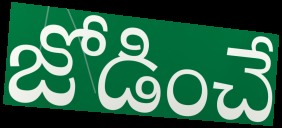
జోడించే